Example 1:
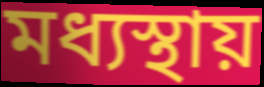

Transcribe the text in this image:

মধ্যস্থায়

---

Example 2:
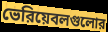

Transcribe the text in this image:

ভেরিয়েবলগুলোর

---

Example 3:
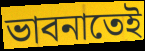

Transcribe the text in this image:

ভাবনাতেই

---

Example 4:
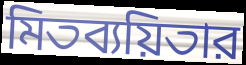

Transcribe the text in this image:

মিতব্যয়িতার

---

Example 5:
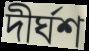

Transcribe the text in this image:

দীর্ঘশ